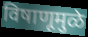
विषाणूमुळे